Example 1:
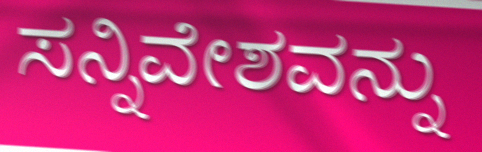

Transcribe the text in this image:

ಸನ್ನಿವೇಶವನ್ನು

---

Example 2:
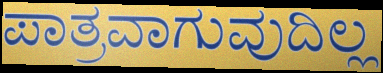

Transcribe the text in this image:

ಪಾತ್ರವಾಗುವುದಿಲ್ಲ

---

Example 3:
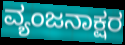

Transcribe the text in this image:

ವ್ಯಂಜನಾಕ್ಷರ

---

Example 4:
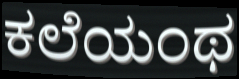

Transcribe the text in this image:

ಕಲೆಯಂಥ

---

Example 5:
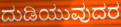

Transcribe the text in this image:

ದುಡಿಯುವುದರ